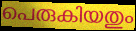
പെരുകിയതും